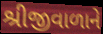
શ્રીજીવાળાને